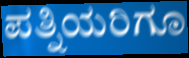
ಪತ್ನಿಯರಿಗೂ